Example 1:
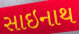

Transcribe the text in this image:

સાઇનાથ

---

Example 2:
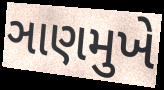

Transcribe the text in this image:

ઞાણમુખે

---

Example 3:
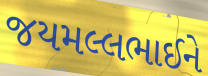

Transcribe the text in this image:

જયમલ્લભાઈને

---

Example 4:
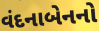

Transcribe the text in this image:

વંદનાબેનનો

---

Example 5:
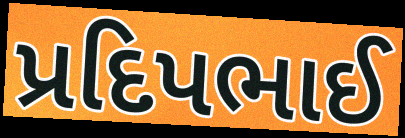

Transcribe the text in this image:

પ્રદિપભાઈ